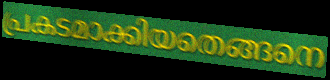
പ്രകടമാക്കിയതെങ്ങനെ